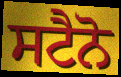
ਸਟੈਨੋ